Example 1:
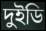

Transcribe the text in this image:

দুইডি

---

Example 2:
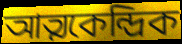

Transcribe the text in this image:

আত্মকেন্দ্রিক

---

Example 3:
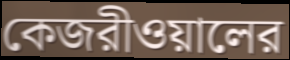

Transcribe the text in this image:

কেজরীওয়ালের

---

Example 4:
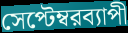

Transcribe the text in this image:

সেপ্টেম্বরব্যাপী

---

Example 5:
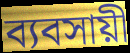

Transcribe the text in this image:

ব্যবসায়ী